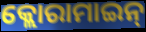
କ୍ଲୋରାମାଇନ୍